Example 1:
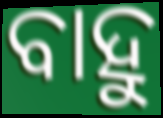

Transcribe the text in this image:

ବାହୁ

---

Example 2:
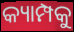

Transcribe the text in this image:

କ୍ୟାମ୍ପକୁ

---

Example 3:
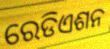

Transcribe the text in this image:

ରେଡିଏଶନ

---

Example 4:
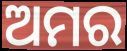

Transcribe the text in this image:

ଅମର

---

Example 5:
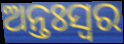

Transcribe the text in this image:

ଅନ୍ତଃସ୍ଵର